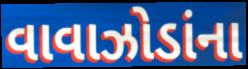
વાવાઝોડાંના